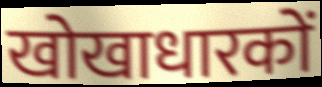
खोखाधारकों